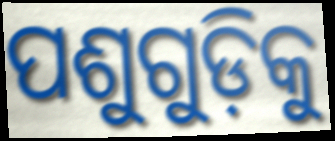
ପଶୁଗୁଡ଼ିକୁ